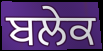
ਬਲੇਕ